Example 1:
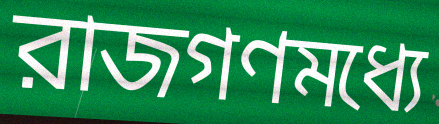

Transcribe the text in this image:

রাজগণমধ্যে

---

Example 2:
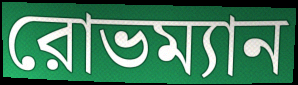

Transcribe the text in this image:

রোভম্যান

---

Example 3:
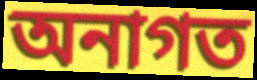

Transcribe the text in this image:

অনাগত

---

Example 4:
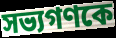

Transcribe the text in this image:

সভ্যগণকে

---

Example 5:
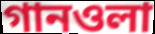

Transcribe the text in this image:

গানওলা